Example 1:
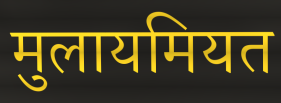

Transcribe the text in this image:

मुलायमियत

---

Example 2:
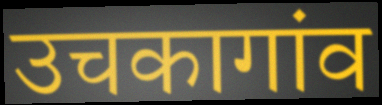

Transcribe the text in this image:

उचकागांव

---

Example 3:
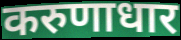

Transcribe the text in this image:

करुणाधार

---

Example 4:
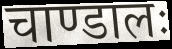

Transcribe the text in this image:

चाण्डालः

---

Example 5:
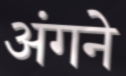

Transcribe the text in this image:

अंगने